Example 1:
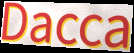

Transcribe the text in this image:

Dacca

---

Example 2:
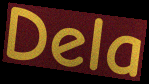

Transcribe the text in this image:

Dela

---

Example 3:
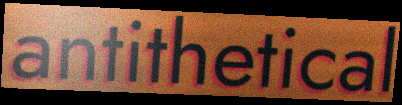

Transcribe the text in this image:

antithetical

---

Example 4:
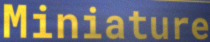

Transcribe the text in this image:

Miniature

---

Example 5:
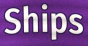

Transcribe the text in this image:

Ships